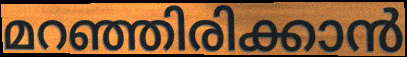
മറഞ്ഞിരിക്കാൻ